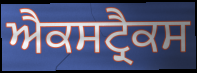
ਐਕਸਟ੍ਰੈਕਸ